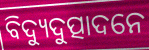
ବିଦ୍ଯୁଦୁତ୍ପାଦନେ